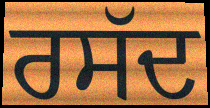
ਰਸੱਦ